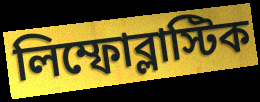
লিম্ফোব্লাস্টিক